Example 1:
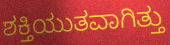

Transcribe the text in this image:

ಶಕ್ತಿಯುತವಾಗಿತ್ತು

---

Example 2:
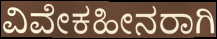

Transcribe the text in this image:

ವಿವೇಕಹೀನರಾಗಿ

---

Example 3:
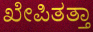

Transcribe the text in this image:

ಖೇಪಿತತ್ತಾ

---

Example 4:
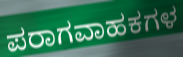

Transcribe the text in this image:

ಪರಾಗವಾಹಕಗಳ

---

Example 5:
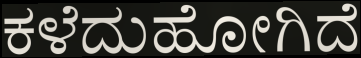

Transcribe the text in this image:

ಕಳೆದುಹೋಗಿದೆ